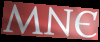
MNE